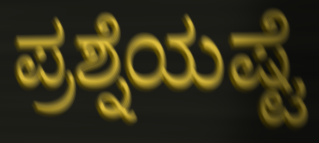
ಪ್ರಶ್ನೆಯಷ್ಟೆ